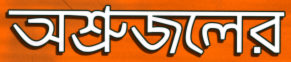
অশ্রুজলের